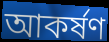
আকৰ্ষণ